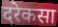
दरेकसा